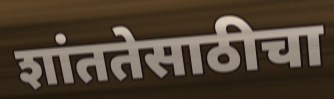
शांततेसाठीचा